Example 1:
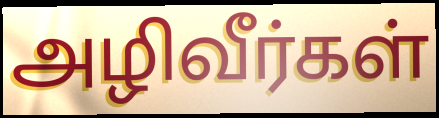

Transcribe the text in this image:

அழிவீர்கள்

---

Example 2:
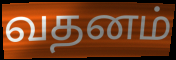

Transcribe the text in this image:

வதனம்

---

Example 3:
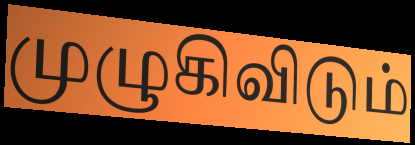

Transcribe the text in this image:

முழுகிவிடும்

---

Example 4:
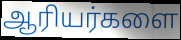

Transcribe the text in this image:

ஆரியர்களை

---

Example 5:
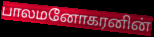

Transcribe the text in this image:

பாலமனோகரனின்